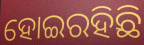
ହୋଇରହିଛି